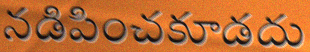
నడిపించకూడదు